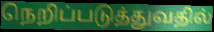
நெறிப்படுத்துவதில்